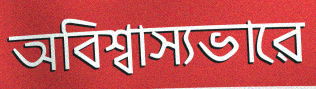
অবিশ্বাস্যভাৱে